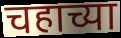
चहाच्या